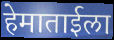
हेमाताईला